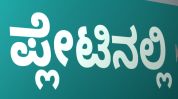
ಪ್ಲೇಟಿನಲ್ಲಿ